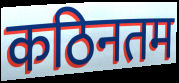
कठिनतम